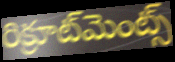
రిక్రూట్‌మెంట్స్